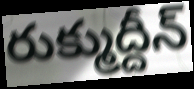
రుక్ముద్దీన్